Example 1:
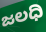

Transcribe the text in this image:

ಜಲಧಿ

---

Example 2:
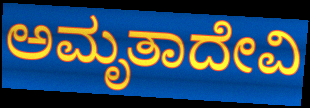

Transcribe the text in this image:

ಅಮೃತಾದೇವಿ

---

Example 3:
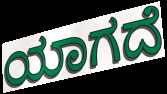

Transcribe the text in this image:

ಯಾಗದೆ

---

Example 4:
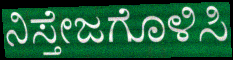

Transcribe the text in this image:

ನಿಸ್ತೇಜಗೊಳಿಸಿ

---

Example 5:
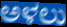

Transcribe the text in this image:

ಅಳಲು